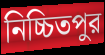
নিচ্চিতপুর